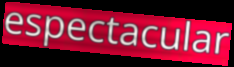
espectacular